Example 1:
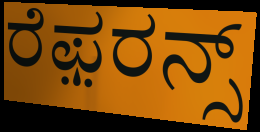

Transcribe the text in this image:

ರೆಫ಼ರನ್ಸ್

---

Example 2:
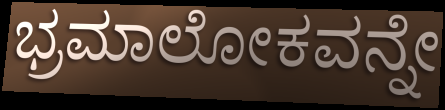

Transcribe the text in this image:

ಭ್ರಮಾಲೋಕವನ್ನೇ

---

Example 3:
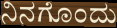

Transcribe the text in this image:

ನಿನಗೊಂದು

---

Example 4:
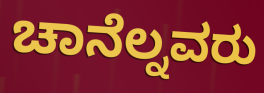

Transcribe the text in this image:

ಚಾನೆಲ್ನವರು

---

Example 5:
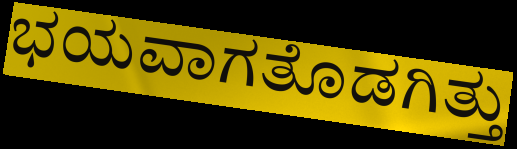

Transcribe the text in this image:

ಭಯವಾಗತೊಡಗಿತ್ತು